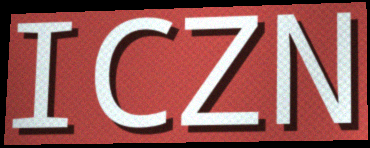
ICZN